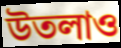
উতলাও